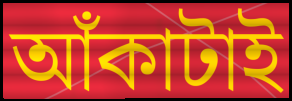
আঁকাটাই